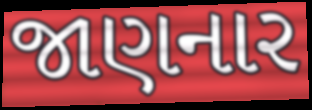
જાણનાર